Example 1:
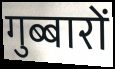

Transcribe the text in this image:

गुब्बारों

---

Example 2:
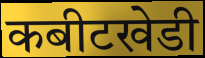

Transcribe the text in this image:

कबीटखेडी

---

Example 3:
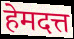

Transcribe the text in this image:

हेमदत्त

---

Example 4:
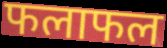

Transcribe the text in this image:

फलाफल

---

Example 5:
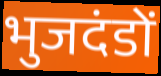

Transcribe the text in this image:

भुजदंडों